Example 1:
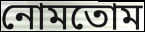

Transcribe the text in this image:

নোমতোম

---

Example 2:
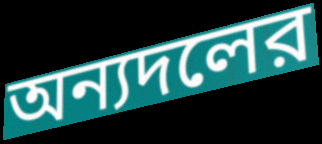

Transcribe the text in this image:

অন্যদলের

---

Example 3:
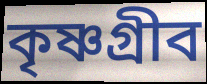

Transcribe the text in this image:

কৃষ্ণগ্রীব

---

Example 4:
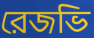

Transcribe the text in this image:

রেজভি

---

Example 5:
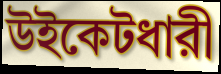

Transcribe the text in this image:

উইকেটধারী